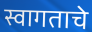
स्वागताचे